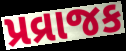
પ્રવ્રાજક